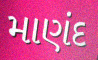
માણંદ